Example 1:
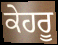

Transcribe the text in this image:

ਕੇਹਰੂ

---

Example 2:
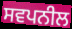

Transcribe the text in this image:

ਸਵਪਨੀਲ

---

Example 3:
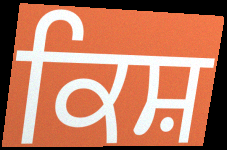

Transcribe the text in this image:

ਕਿਸ਼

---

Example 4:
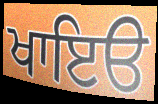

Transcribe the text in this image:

ਖਾਇੳ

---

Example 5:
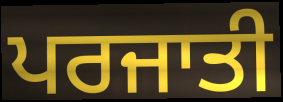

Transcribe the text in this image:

ਪਰਜਾਤੀ